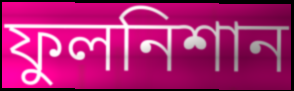
ফুলনিশান